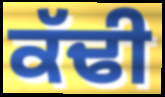
ਕੱਢੀ